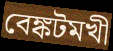
বেঙ্কটমখী